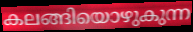
കലങ്ങിയൊഴുകുന്ന